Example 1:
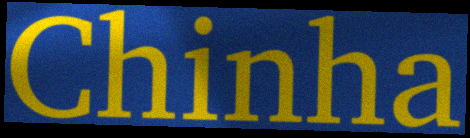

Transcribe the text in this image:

Chinha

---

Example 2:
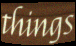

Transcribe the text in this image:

things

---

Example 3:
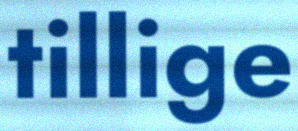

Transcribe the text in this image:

tillige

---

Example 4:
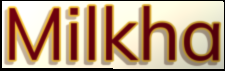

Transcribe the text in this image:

Milkha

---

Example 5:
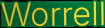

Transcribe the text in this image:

Worrell